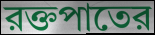
রক্তপাতের